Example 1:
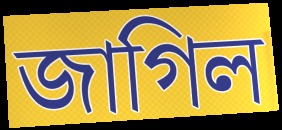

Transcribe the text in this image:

জাগিল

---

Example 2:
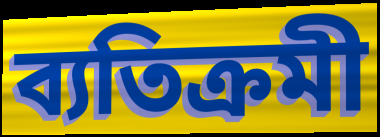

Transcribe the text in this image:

ব্যতিক্ৰমী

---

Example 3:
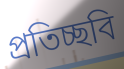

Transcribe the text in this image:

প্ৰতিচ্ছবি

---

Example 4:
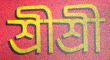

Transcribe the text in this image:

শ্ৰীশ্ৰী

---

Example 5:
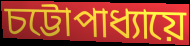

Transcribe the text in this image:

চট্টোপাধ্যায়ে